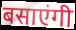
बसाएंगी